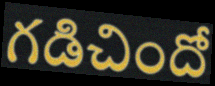
గడిచిందో